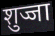
शुज्जा